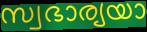
സ്വഭാര്യയാ